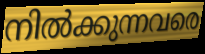
നിൽക്കുന്നവരെ